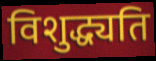
विशुद्ध्यति